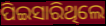
ପିଇସାରିଥିଲେ